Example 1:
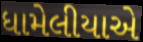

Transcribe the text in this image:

ધામેલીયાએ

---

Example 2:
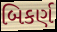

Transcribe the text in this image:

બિકર્ણ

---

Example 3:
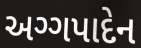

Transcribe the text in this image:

અગ્ગપાદેન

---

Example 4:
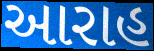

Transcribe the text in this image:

આરાહ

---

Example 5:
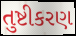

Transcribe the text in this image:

તુષ્ટીકરણ